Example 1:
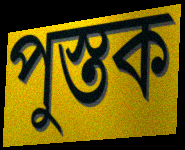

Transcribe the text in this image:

পুস্তক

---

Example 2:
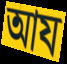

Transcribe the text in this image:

আয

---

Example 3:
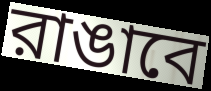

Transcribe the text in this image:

রাঙাবে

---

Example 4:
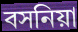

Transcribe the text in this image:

বসনিয়া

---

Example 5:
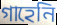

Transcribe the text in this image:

গাহেনি